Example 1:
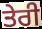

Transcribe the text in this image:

ਤੇਰੀ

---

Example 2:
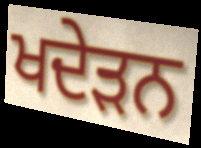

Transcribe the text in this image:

ਖਦੇੜਨ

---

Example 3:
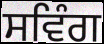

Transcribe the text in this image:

ਸਵਿੰਗ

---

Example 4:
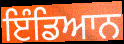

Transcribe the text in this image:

ਇੰਡਿਆਨ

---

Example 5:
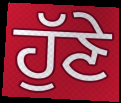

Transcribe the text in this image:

ਹੁੱਣੇ